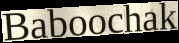
Baboochak